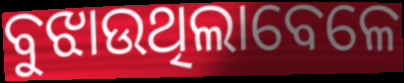
ବୁଝାଉଥିଲାବେଳେ